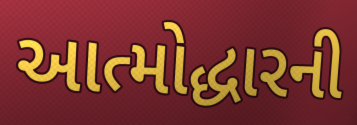
આત્મોદ્ધારની